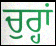
ਚੁਰ੍ਹਾਂ